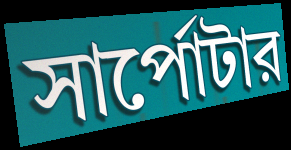
সার্পোটার